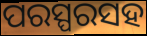
ପରସ୍ପରସହ